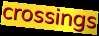
crossings